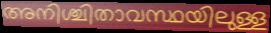
അനിശ്ചിതാവസ്ഥയിലുള്ള